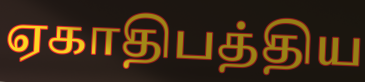
ஏகாதிபத்திய